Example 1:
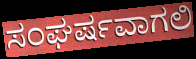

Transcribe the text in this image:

ಸಂಘರ್ಷವಾಗಲಿ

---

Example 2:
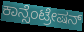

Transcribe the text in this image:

ಕಾನ್ಸೆಂಟ್ರೇಷನ್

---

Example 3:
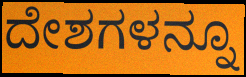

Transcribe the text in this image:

ದೇಶಗಳನ್ನೂ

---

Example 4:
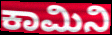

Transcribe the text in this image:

ಕಾಮಿನಿ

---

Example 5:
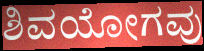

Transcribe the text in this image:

ಶಿವಯೋಗವು